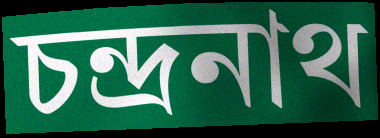
চন্দ্রনাথ